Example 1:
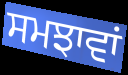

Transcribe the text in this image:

ਸਮਝਾਵਾਂ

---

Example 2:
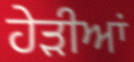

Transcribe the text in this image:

ਹੇੜੀਆਂ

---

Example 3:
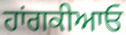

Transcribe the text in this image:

ਹਾਂਗਕੀਆਓ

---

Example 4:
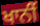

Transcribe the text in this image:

ਖਾਨੀਂ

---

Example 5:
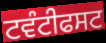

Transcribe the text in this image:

ਟਵੰਟੀਫਸਟ